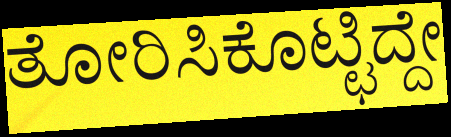
ತೋರಿಸಿಕೊಟ್ಟಿದ್ದೇ